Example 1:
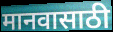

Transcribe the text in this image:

मानवासाठी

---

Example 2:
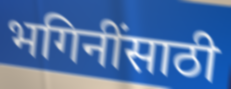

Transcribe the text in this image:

भगिनींसाठी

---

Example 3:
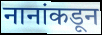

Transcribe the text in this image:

नानांकडून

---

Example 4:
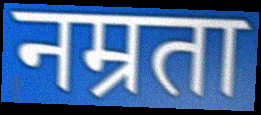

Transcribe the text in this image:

नम्रता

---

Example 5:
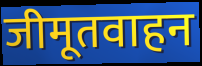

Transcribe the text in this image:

जीमूतवाहन